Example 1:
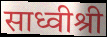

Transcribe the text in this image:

साध्वीश्री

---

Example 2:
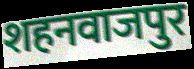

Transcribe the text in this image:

शहनवाजपुर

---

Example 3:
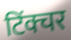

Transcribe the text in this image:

टिंक्चर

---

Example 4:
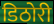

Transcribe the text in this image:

डिठोरी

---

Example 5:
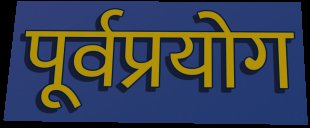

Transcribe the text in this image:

पूर्वप्रयोग